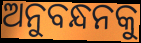
ଅନୁବନ୍ଧନକୁ